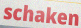
schaken